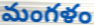
మంగళం